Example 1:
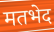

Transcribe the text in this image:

मतभेद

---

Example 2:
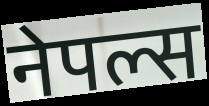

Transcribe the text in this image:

नेपल्स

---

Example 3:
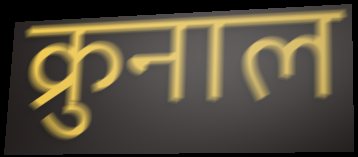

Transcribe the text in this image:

क्रुनाल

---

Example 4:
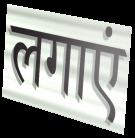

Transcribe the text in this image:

लगाएं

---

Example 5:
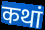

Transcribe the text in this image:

कथां